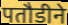
पतौडीने